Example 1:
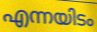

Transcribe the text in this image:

എന്നയിടം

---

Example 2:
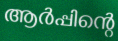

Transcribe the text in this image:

ആർപ്പിന്റെ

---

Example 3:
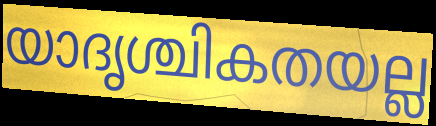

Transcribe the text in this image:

യാദൃശ്ചികതയല്ല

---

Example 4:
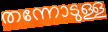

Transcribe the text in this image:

തന്നോടുള്ള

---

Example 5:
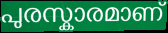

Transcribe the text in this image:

പുരസ്കാരമാണ്